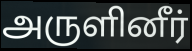
அருளினீர்